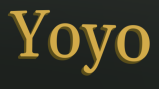
Yoyo